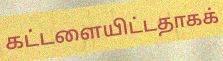
கட்டளையிட்டதாகக்